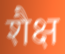
शैक्ष